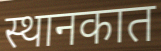
स्थानकात